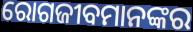
ରୋଗଜୀବମାନଙ୍କର